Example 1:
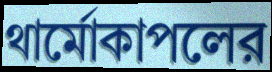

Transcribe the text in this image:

থার্মোকাপলের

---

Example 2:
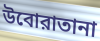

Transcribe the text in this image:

উবোরাতানা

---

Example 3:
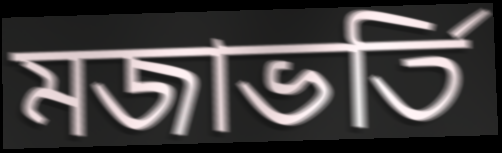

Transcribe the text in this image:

মজাভর্তি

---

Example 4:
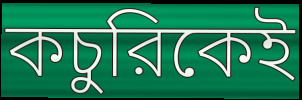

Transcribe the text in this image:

কচুরিকেই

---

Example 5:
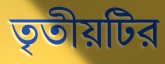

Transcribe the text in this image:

তৃতীয়টির